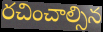
రచించాల్సిన